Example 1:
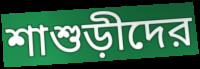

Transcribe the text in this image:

শাশুড়ীদের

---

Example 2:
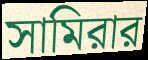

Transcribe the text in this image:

সামিরার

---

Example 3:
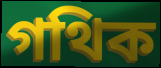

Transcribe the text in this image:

গথিক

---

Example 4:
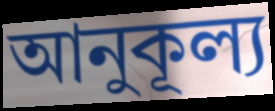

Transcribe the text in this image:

আনুকূল্য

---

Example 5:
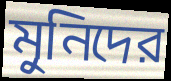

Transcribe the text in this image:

মুনিদের